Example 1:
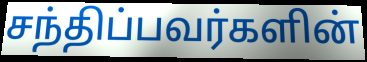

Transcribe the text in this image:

சந்திப்பவர்களின்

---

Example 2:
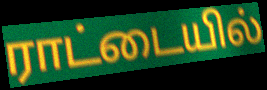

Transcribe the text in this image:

ராட்டையில்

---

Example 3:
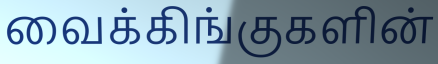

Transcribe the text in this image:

வைக்கிங்குகளின்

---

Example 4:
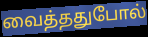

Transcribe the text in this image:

வைத்ததுபோல்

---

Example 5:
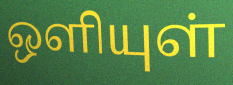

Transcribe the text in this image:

ஒளியுள்